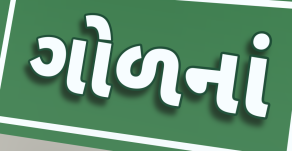
ગોળનાં